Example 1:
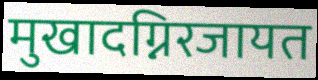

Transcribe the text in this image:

मुखादग्निरजायत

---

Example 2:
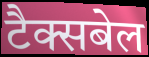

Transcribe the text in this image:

टैक्सबेल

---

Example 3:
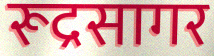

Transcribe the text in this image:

रूद्रसागर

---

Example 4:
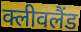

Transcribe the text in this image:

क्लीवलैंड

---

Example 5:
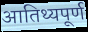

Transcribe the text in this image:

आतिथ्यपूर्ण